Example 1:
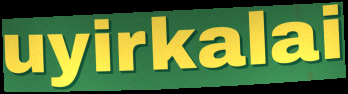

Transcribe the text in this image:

uyirkalai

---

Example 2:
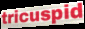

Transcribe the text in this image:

tricuspid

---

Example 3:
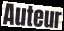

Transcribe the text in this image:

Auteur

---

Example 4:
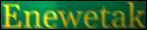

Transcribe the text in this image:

Enewetak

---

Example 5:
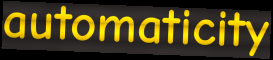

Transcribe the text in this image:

automaticity